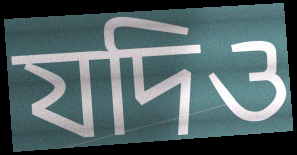
যদিও